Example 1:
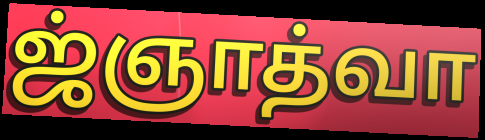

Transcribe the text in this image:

ஜ்ஞாத்வா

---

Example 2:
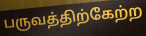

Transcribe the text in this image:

பருவத்திற்கேற்ற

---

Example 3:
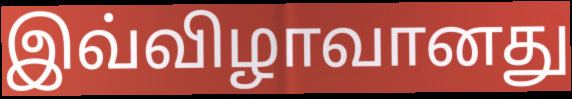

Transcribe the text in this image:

இவ்விழாவானது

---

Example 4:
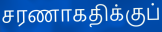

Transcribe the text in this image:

சரணாகதிக்குப்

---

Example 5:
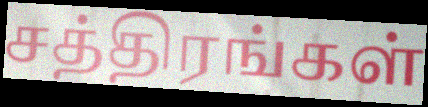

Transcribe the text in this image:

சத்திரங்கள்